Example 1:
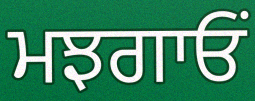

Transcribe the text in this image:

ਮਝਗਾਓਂ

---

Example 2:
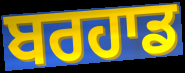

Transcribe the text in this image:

ਬਰਹਾਡ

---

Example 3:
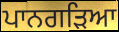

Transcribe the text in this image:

ਪਾਨਗੜਿਆ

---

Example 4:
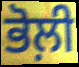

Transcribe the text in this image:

ਭੋਲ਼ੀ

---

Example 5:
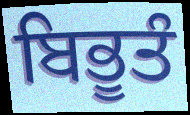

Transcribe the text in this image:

ਬਿਭੂਤੰ